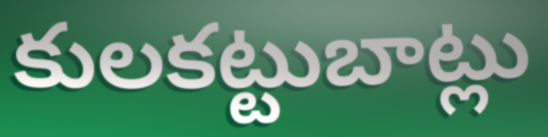
కులకట్టుబాట్లు